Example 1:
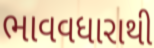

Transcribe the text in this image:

ભાવવધારાથી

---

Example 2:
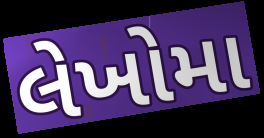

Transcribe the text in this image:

લેખોમા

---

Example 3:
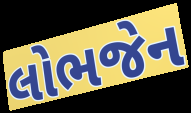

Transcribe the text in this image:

લોભજેન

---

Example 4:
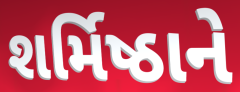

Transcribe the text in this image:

શર્મિષ્ઠાને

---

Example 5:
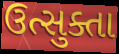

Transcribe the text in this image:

ઉત્સુક્તા